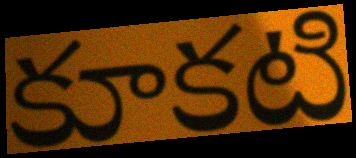
కూకటి